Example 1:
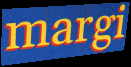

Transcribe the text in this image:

margi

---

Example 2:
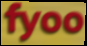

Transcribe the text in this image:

fyoo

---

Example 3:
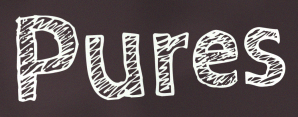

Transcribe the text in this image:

Pures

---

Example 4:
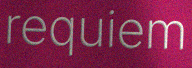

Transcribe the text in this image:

requiem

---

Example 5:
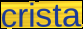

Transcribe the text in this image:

crista